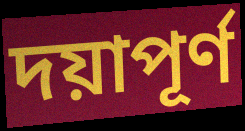
দয়াপূর্ণ